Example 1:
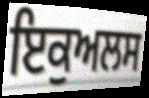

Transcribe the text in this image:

ਇਕੁਅਲਸ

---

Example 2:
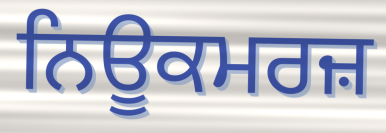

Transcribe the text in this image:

ਨਿਊਕਮਰਜ਼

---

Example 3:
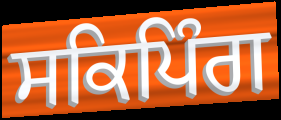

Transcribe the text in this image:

ਸਕਿਪਿੰਗ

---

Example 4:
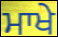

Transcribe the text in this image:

ਮਾਖੇ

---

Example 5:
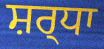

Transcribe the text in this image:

ਸ਼ਰ੍ਧਾ